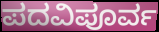
ಪದವಿಪೂರ್ವ